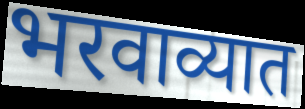
भरवाव्यात